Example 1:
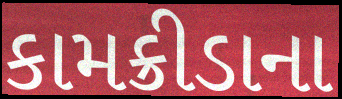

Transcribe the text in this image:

કામક્રીડાના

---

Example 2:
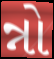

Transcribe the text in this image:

ન્નો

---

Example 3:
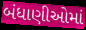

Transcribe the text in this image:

બંધાણીઓમાં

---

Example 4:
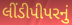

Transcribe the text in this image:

લીંડીપીપરનું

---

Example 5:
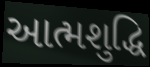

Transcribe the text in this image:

આત્મશુદ્ધિ